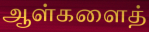
ஆள்களைத்